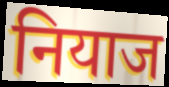
नियाज